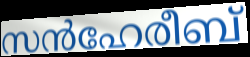
സൻഹേരീബ്